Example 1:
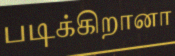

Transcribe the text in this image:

படிக்கிறானா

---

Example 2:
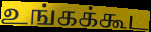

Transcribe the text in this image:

உங்கக்கூட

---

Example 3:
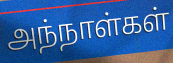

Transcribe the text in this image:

அந்நாள்கள்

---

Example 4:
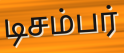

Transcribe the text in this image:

டிசம்பர்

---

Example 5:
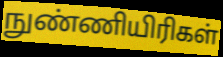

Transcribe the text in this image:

நுண்ணியிரிகள்